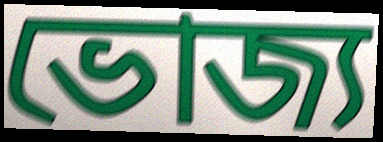
ভোজ্য